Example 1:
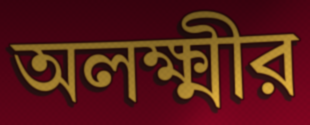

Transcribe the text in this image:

অলক্ষ্মীর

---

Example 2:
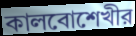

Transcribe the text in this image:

কালবোশেখীর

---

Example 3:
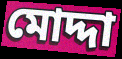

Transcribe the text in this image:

মোদ্দা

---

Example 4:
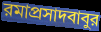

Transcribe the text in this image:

রমাপ্রসাদবাবুর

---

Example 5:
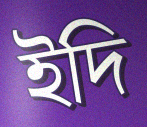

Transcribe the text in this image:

ইদি